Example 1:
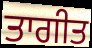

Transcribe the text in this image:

ਤਾਗੀਤ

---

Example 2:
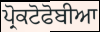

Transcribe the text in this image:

ਪ੍ਰੋਕਟੋਫੋਬੀਆ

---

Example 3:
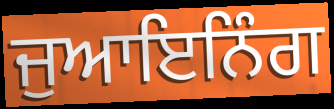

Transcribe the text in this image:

ਜੁਆਇਨਿੰਗ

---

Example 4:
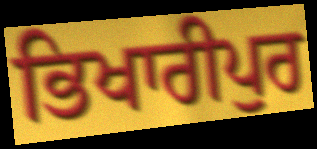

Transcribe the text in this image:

ਭਿਖਾਰੀਪੁਰ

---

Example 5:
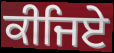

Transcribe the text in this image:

ਕੀਜਿਏ